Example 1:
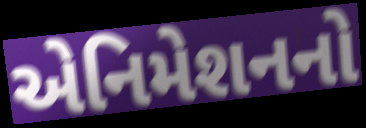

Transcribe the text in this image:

એનિમેશનનો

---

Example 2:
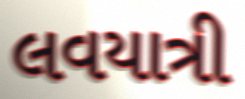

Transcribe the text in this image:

લવયાત્રી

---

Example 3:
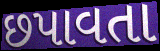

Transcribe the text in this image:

છપાવતા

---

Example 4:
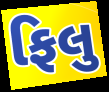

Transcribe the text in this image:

ફિલુ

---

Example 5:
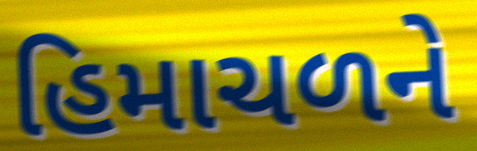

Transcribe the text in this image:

હિમાચળને